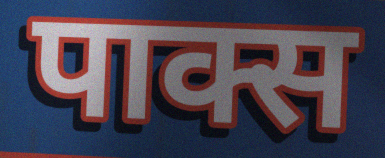
पाक्स